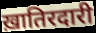
ख़ातिरदारी